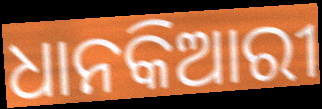
ଧାନକିଆରୀ